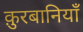
क़ुरबानियाँ